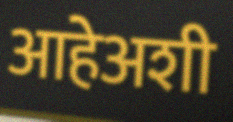
आहेअशी